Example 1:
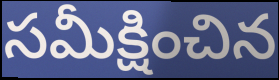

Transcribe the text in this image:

సమీక్షించిన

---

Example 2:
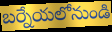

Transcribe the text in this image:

బర్నేయలోనుండి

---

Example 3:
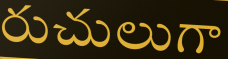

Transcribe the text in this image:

రుచులుగా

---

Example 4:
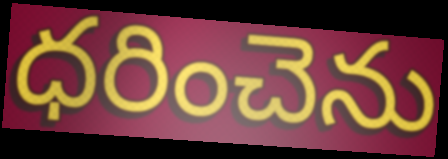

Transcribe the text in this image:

ధరించెను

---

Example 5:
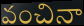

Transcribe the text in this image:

వంచినా